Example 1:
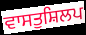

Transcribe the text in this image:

ਵਾਸਤੁਸ਼ਿਲਪ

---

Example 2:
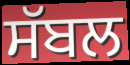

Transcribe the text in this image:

ਸੱਬਲ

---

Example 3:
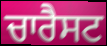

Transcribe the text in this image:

ਚਾਰੈਸਟ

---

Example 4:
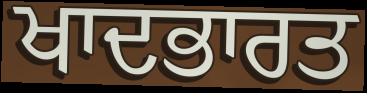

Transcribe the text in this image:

ਖਾਦਭਾਰਤ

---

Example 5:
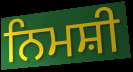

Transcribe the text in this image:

ਨਿਮਸ਼ੀ